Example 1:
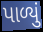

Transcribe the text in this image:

પાળ્યું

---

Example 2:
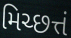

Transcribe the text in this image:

મિચ્છત્તં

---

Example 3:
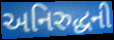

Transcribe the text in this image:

અનિરુદ્ધની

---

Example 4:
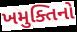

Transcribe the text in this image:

ખમુક્તિનો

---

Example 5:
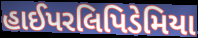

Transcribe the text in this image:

હાઈપરલિપિડેમિયા